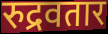
रुद्रवतार